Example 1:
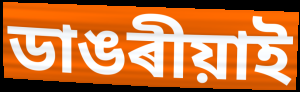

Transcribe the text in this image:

ডাঙৰীয়াই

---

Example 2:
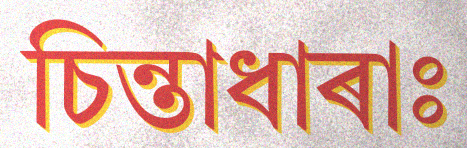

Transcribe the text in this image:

চিন্তাধাৰাঃ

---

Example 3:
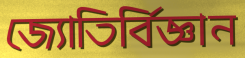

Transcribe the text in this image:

জ্যোতিৰ্বিজ্ঞান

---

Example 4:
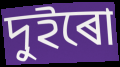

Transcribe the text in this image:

দুইৰো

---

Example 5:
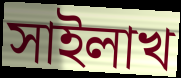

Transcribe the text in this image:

সাইলাখ